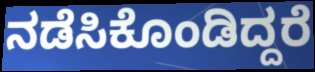
ನಡೆಸಿಕೊಂಡಿದ್ದರೆ